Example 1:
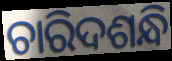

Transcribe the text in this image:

ଚାରିଦଶନ୍ଧି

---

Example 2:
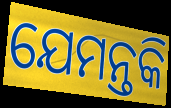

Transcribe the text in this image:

ଯେମନ୍ତକି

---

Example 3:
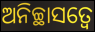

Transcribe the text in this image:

ଅନିଚ୍ଛାସତ୍ୱେ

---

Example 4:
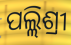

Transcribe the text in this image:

ପଲ୍ଲିଶ୍ରୀ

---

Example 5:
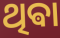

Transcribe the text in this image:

ଥିଵା